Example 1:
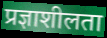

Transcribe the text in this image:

प्रज्ञाशीलता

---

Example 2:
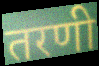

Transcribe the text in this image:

तरणी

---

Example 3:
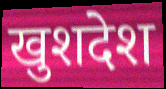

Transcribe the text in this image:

खुशदेश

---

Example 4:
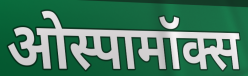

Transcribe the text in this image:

ओस्पामॉक्स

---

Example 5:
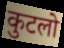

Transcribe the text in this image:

कुटलो